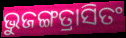
ଭୁଜଙ୍ଗତ୍ରାସିତଂ